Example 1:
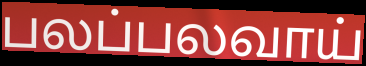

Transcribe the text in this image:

பலப்பலவாய்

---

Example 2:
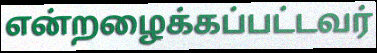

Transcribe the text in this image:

என்றழைக்கப்பட்டவர்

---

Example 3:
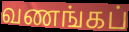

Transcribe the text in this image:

வணங்கப்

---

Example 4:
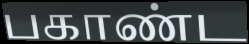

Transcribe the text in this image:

பகாண்ட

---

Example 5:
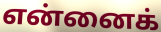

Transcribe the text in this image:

என்னைக்